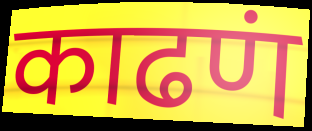
काढणं